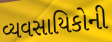
વ્યવસાયિકોની